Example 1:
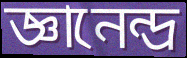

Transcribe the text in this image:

জ্ঞানেন্দ্র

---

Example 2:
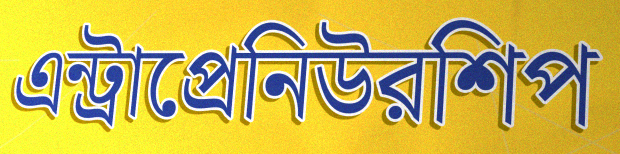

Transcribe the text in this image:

এন্ট্রাপ্রেনিউরশিপ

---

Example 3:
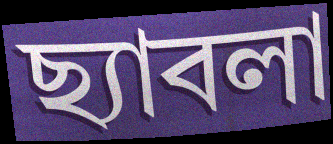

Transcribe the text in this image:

ছ্যাবলা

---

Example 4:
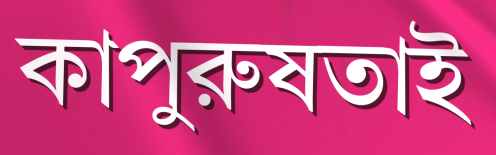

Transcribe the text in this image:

কাপুরুষতাই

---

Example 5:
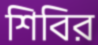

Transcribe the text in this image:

শিবির